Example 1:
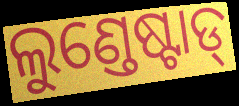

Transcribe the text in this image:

ଲୁଣ୍ଡେଷ୍ଟାଡ୍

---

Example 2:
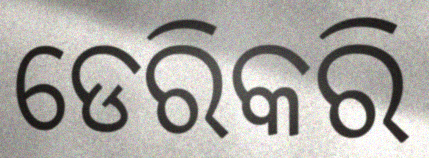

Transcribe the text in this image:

ଡେରିକରି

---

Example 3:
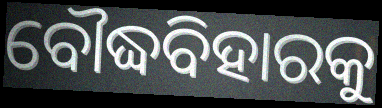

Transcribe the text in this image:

ବୌଦ୍ଧବିହାରକୁ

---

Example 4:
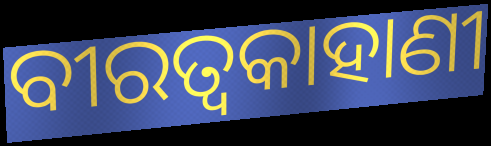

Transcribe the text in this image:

ବୀରତ୍ୱକାହାଣୀ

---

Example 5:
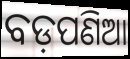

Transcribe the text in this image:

ବଡ଼ପଣିଆ